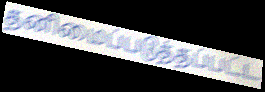
தனிமைப்படுத்தப்பட்ட